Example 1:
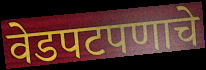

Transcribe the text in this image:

वेडपटपणाचे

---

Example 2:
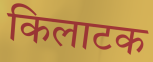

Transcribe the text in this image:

किलाटक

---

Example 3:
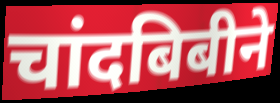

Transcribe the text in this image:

चांदबिबीने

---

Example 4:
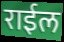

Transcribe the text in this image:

राईल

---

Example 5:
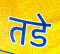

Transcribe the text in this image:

तडे